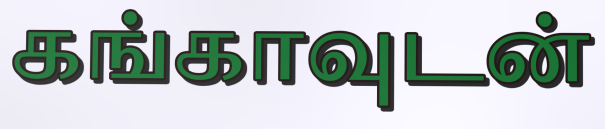
கங்காவுடன்